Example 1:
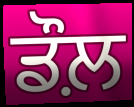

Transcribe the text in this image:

ਡੌਲ਼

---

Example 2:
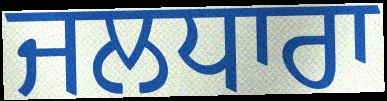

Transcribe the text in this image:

ਜਲਧਾਰਾ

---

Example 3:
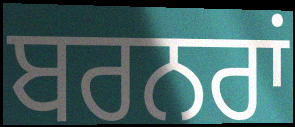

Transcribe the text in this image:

ਬਰਨਰਾਂ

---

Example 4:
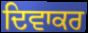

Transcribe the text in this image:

ਦਿਵਾਕਰ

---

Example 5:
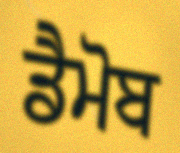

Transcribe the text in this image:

ਡੈਮੋਬ